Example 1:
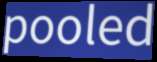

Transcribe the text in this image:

pooled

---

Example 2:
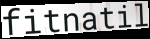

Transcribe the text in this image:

fitnatil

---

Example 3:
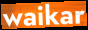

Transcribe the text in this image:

waikar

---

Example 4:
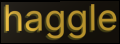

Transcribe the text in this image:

haggle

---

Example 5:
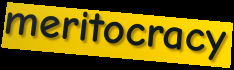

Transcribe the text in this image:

meritocracy